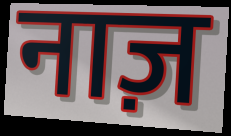
नाज़